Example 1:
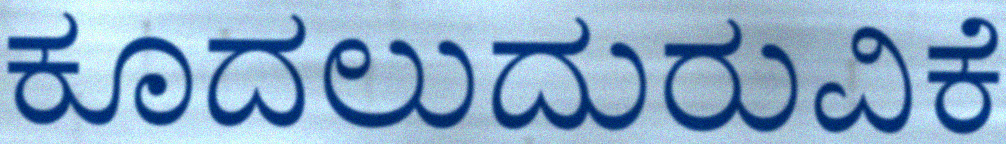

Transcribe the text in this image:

ಕೂದಲುದುರುವಿಕೆ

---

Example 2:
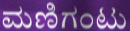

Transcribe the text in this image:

ಮಣಿಗಂಟು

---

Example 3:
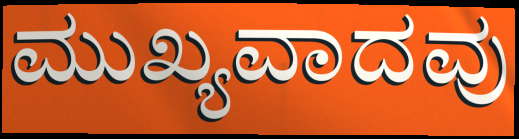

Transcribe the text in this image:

ಮುಖ್ಯವಾದವು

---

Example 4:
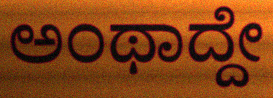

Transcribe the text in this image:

ಅಂಥಾದ್ದೇ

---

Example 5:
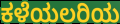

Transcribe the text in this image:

ಕಳೆಯಲರಿಯ